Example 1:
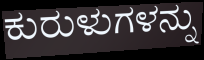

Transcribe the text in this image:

ಕುರುಳುಗಳನ್ನು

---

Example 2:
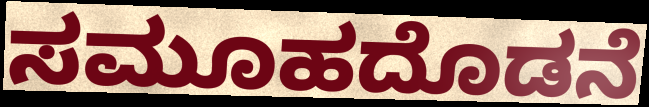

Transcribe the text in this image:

ಸಮೂಹದೊಡನೆ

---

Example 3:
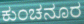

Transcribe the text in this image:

ಕುಂಚನೂರ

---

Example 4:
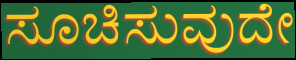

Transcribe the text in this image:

ಸೂಚಿಸುವುದೇ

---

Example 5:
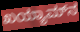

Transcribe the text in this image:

ಖಯ್ಯಾಮ್‌ನ